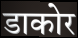
डाकोर